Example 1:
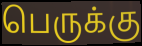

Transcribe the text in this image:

பெருக்கு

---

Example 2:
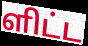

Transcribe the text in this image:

ளிட்ட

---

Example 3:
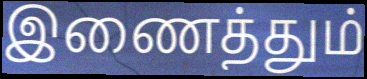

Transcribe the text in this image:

இணைத்தும்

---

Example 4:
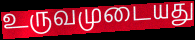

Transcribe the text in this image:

உருவமுடையது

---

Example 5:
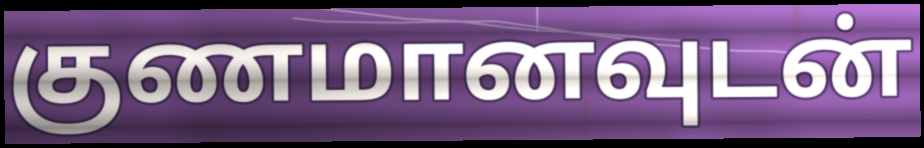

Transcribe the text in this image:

குணமானவுடன்